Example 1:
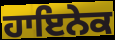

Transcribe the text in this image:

ਹਾਇਨੇਕ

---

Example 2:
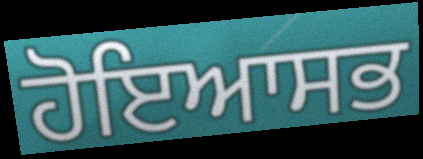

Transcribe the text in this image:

ਹੋਇਆਸਭ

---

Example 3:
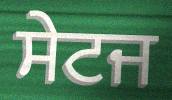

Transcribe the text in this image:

ਸੇਟਜ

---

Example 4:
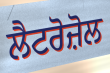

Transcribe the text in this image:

ਲੈਟਰੋਜ਼ੋਲ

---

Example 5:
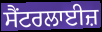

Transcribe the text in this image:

ਸੈਂਟਰਲਾਈਜ਼